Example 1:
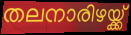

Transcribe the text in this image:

തലനാരിഴയ്ക്ക്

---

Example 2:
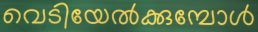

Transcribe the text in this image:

വെടിയേൽക്കുമ്പോൾ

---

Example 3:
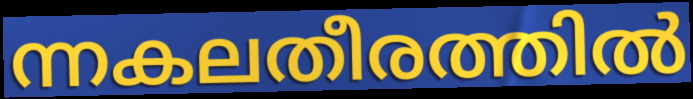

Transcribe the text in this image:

ന്നകലതീരത്തിൽ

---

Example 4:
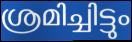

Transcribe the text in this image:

ശ്രമിച്ചിട്ടും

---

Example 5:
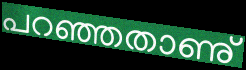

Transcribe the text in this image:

പറഞ്ഞതാണു്